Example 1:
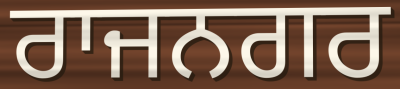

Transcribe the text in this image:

ਰਾਜਨਗਰ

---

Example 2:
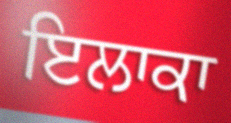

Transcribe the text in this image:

ਇਲਾਕਾ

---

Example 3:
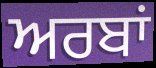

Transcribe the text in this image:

ਅਰਬਾਂ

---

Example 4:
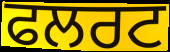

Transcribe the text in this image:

ਫਲਰਟ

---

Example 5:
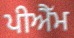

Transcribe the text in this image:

ਪੀਐੱਮ